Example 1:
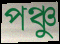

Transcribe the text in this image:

পঞ্চু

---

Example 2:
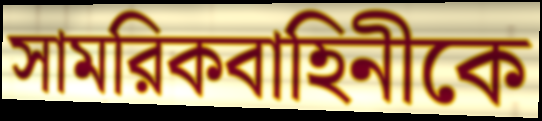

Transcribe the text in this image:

সামরিকবাহিনীকে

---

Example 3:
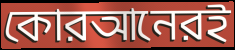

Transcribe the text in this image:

কোরআনেরই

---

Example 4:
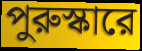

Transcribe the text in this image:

পুরুস্কারে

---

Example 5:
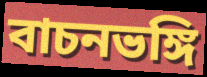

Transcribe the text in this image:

বাচনভঙ্গি